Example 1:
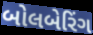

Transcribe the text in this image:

બોલબેરિંગ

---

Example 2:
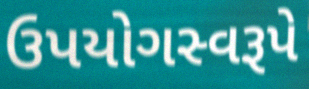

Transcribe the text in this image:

ઉપયોગસ્વરૂપે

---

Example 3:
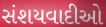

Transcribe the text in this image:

સંશયવાદીઓ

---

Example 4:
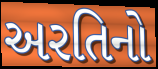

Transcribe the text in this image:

અરતિનો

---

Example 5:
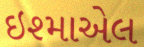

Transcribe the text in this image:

ઇશ્માએલ